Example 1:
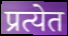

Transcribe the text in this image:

प्रत्येत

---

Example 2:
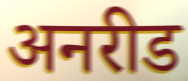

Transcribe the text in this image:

अनरीड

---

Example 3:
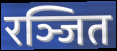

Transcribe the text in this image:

रञ्जित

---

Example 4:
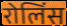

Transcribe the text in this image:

रोलिंस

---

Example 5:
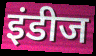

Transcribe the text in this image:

इंडीज